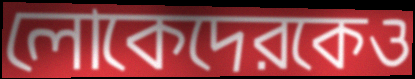
লোকেদেরকেও